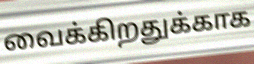
வைக்கிறதுக்காக